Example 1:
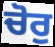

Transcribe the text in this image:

ਚੋਰੁ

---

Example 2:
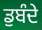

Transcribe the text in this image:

ਡੁਬੰਦੇ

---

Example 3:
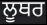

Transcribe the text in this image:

ਲੂਥਰ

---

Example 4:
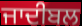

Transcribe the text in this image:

ਜਾਦੀਬਲ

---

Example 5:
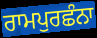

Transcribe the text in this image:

ਰਾਮਪੁਰਛੰਨਾ